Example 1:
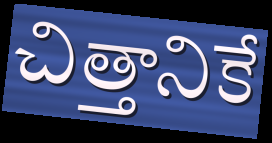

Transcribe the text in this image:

చిత్తానికే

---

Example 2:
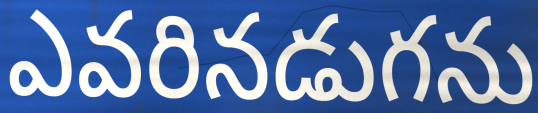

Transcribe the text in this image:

ఎవరినడుగను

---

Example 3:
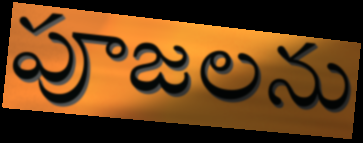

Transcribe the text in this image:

పూజలను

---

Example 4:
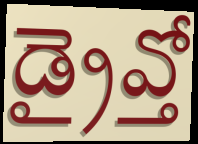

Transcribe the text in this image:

డ్రైవ్తో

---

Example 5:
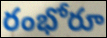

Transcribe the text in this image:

రంభోరూ